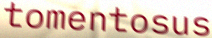
tomentosus